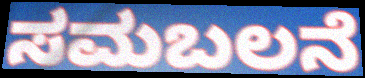
ಸಮಬಲನೆ